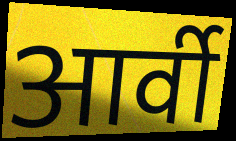
आर्वी